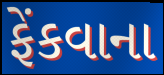
ફેંકવાના